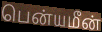
பென்யமீன்